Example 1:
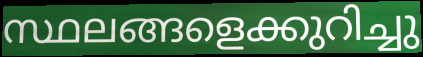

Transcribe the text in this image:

സ്ഥലങ്ങളെക്കുറിച്ചു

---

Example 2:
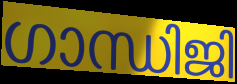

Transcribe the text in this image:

ഗാന്ധിജി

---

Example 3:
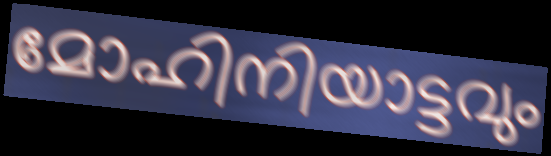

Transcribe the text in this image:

മോഹിനിയാട്ടവും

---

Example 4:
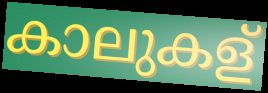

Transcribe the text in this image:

കാലുകള്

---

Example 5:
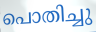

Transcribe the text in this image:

പൊതിച്ചു